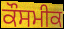
ਕੌਸਮੀਕ